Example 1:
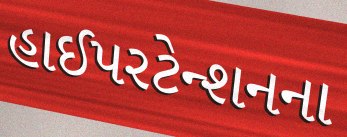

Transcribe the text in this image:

હાઈપરટેન્શનના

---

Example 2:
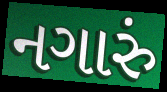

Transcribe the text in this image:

નગારું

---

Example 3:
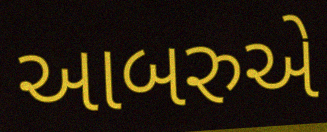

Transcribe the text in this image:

આબરુએ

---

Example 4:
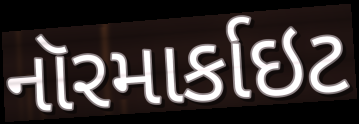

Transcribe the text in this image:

નૉરમાર્કાઇટ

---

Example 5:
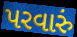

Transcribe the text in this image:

પરવારું